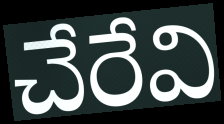
చేరేవి